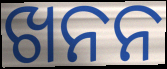
ଖନନ